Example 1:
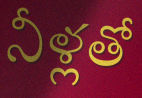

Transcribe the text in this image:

నీళ్లతో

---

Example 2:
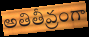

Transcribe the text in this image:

అతితీవ్రంగా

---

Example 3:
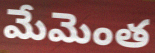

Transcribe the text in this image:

మేమెంత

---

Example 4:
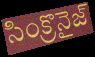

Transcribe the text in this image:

సింక్రొనైజ్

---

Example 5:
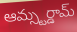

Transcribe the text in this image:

ఆమ్స్టర్డామ్